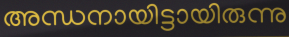
അന്ധനായിട്ടായിരുന്നു